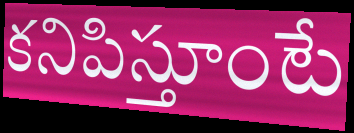
కనిపిస్తూంటే